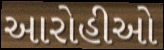
આરોહીઓ